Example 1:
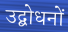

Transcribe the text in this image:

उद्बोधनों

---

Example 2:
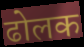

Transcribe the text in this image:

ढोलक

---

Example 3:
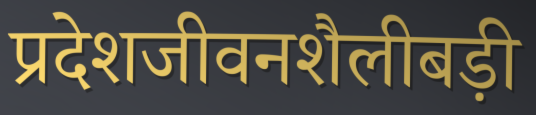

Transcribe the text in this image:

प्रदेशजीवनशैलीबड़ी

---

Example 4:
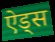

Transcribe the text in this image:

ऐड्स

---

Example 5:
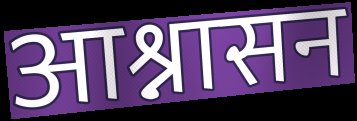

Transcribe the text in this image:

आश्नासन